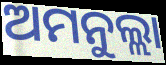
ଅମନୁଲ୍ଲା